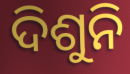
ଦିଶୁନି